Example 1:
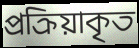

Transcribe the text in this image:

প্রক্রিয়াকৃত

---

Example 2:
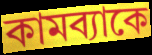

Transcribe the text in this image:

কামব্যাকে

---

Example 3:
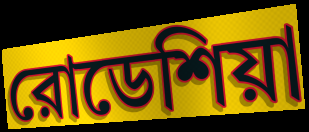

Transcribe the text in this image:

রোডেশিয়া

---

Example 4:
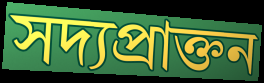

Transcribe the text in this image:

সদ্যপ্রাক্তন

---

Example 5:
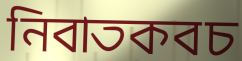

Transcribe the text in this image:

নিবাতকবচ